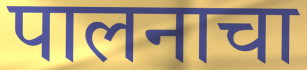
पालनाचा